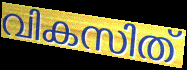
വികസിത്